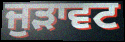
ਜੁੜਾਵਟ